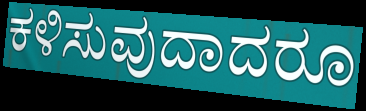
ಕಳಿಸುವುದಾದರೂ